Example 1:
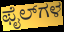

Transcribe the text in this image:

ಫೈಲ್‌ಗಳ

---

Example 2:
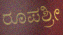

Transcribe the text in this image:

ರೂಪಶ್ರೀ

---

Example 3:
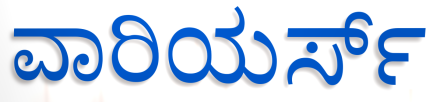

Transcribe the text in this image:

ವಾರಿಯರ್ಸ್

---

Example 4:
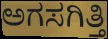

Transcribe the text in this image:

ಅಗಸಗಿತ್ತಿ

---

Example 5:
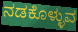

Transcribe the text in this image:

ನಡಕೊಳ್ಳುವ